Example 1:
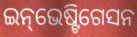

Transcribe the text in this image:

ଇନ୍‌ଭେଷ୍ଟିଗେସନ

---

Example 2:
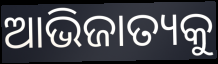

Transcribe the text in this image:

ଆଭିଜାତ୍ୟକୁ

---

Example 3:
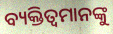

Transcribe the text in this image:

ବ୍ୟକ୍ତିତ୍ବମାନଙ୍କୁ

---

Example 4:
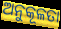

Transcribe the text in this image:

ଅନୁକୂଳତା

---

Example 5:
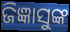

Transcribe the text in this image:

ଜିଜ୍ଞାସୁଙ୍କ